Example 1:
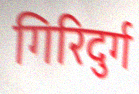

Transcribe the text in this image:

गिरिदुर्ग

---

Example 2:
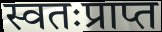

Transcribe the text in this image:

स्वतःप्राप्त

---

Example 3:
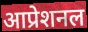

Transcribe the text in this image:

आप्रेशनल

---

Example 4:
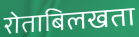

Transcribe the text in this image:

रोताबिलखता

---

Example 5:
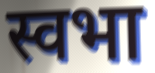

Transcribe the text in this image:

स्वभा